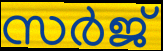
സർജ്